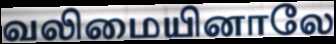
வலிமையினாலே